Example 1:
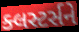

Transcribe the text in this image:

ક્લસ્ટર્સને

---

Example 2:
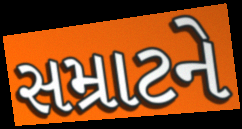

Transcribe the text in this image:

સમ્રાટને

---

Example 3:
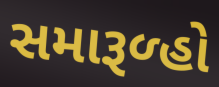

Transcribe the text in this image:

સમારૂળ્હો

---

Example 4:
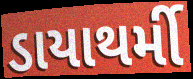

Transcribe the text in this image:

ડાયાથર્મી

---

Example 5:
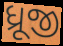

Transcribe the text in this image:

ધ્રૂજી